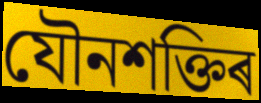
যৌনশক্তিৰ